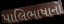
પાલિભાષાનો